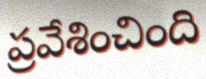
ప్రవేశించింది